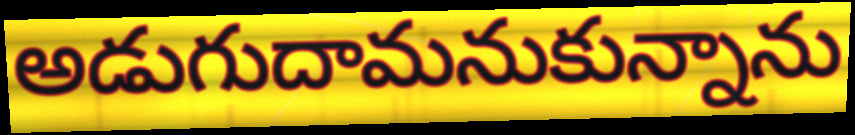
అడుగుదామనుకున్నాను